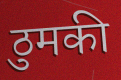
ठुमकी